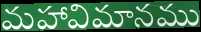
మహావిమానము